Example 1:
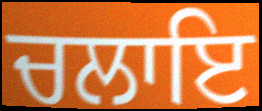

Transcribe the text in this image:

ਚਲਾਇ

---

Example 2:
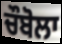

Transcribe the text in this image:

ਚੌਬੋਲਾ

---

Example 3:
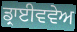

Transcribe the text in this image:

ਡ੍ਰਾਈਵਵੇਅ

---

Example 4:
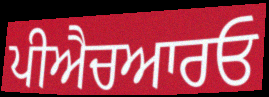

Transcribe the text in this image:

ਪੀਐਚਆਰਓ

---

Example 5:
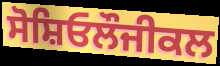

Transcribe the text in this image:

ਸੋਸ਼ਿਓਲੌਜੀਕਲ